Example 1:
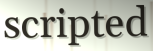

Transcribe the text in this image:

scripted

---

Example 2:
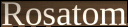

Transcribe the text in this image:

Rosatom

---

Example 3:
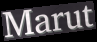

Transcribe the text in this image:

Marut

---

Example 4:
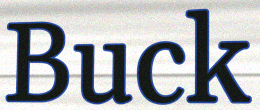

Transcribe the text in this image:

Buck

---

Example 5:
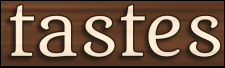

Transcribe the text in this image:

tastes